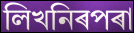
লিখনিৰপৰা